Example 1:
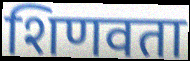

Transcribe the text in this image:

शिणवता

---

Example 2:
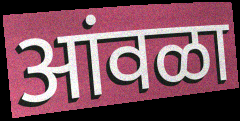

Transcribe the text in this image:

आंवळा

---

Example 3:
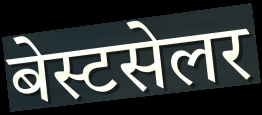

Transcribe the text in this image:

बेस्टसेलर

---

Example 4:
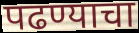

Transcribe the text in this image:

पढण्याचा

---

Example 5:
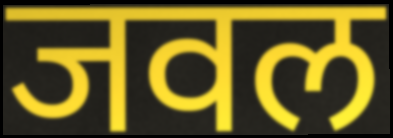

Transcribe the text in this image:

जवल